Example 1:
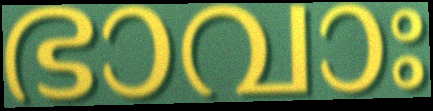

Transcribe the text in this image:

ഭാവാഃ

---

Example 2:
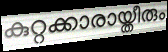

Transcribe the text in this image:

കുറ്റക്കാരായ്തീരും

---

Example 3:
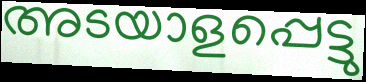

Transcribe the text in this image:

അടയാളപ്പെട്ടു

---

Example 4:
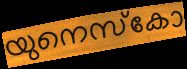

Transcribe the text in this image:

യുനെസ്കോ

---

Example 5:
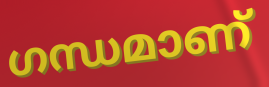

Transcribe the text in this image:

ഗന്ധമാണ്